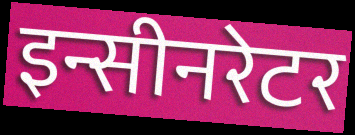
इन्सीनरेटर